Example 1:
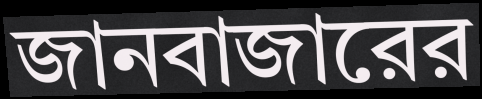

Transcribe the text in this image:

জানবাজারের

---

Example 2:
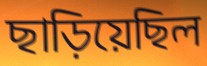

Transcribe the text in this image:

ছাড়িয়েছিল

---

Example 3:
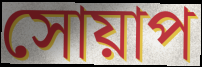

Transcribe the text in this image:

সোয়াপ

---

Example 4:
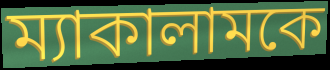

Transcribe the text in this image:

ম্যাকালামকে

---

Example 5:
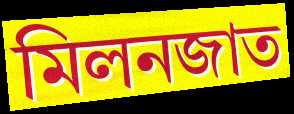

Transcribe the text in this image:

মিলনজাত